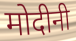
मोदीनी